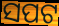
ସପଟ